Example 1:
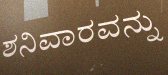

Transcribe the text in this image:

ಶನಿವಾರವನ್ನು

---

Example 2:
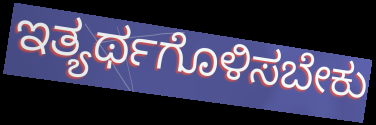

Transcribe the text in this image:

ಇತ್ಯರ್ಥಗೊಳಿಸಬೇಕು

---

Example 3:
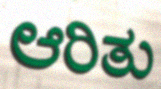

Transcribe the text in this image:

ಆರಿತು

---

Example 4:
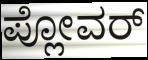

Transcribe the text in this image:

ಪ್ಲೋವರ್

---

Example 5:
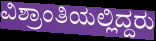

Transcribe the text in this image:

ವಿಶ್ರಾಂತಿಯಲ್ಲಿದ್ದರು